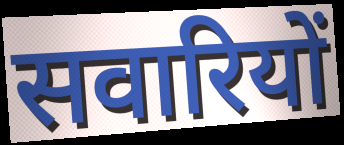
सवारियों